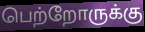
பெற்றோருக்கு